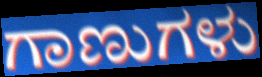
ಗಾಣುಗಳು